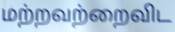
மற்றவற்றைவிட